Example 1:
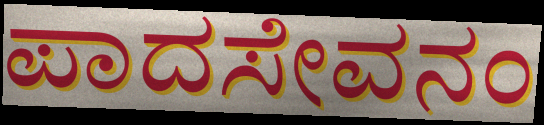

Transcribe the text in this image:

ಪಾದಸೇವನಂ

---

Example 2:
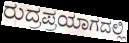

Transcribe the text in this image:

ರುದ್ರಪ್ರಯಾಗದಲ್ಲಿ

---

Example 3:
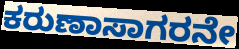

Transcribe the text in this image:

ಕರುಣಾಸಾಗರನೇ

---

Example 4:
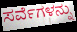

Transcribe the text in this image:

ಸರ್ವೆಗಳನ್ನು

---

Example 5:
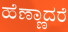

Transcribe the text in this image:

ಹೆಣ್ಣಾದರೆ